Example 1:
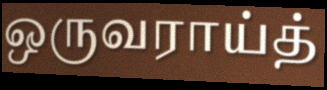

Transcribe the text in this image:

ஒருவராய்த்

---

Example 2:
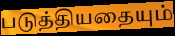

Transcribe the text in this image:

படுத்தியதையும்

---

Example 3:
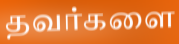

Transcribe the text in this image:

தவர்களை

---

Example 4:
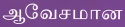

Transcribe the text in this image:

ஆவேசமான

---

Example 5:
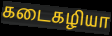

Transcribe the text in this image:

கடைகழியா